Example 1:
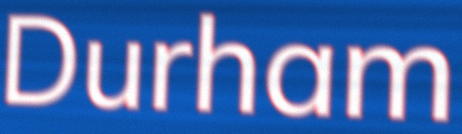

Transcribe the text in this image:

Durham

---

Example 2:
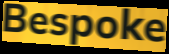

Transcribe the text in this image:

Bespoke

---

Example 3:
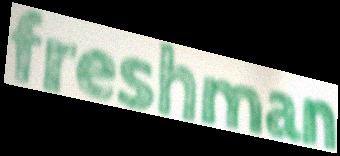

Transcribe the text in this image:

freshman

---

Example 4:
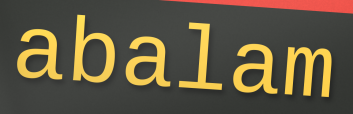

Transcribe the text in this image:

abalam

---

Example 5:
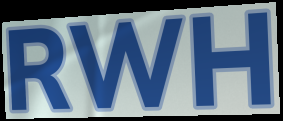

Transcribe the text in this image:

RWH